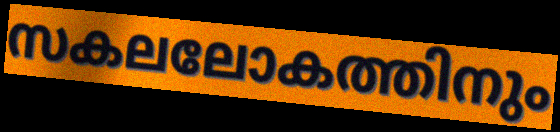
സകലലോകത്തിനും